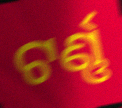
ଟର୍ଣ୍ଣ